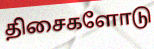
திசைகளோடு